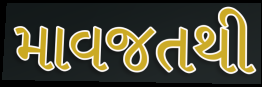
માવજતથી